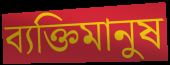
ব্যক্তিমানুষ